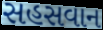
સહસવાન